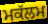
ਮਕੱਲਮ